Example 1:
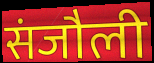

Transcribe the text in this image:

संजौली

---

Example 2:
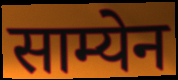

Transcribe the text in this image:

साम्येन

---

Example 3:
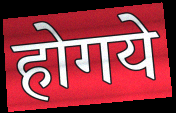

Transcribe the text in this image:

होगये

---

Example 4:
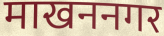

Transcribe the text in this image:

माखननगर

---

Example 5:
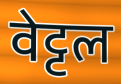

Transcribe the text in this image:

वेट्टल